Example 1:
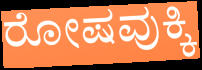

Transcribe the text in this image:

ರೋಷವುಕ್ಕಿ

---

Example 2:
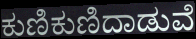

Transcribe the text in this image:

ಕುಣಿಕುಣಿದಾಡುವೆ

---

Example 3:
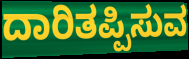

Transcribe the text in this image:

ದಾರಿತಪ್ಪಿಸುವ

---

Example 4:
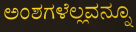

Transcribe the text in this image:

ಅಂಶಗಳೆಲ್ಲವನ್ನೂ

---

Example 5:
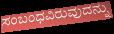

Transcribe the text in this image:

ಸಂಬಂಧವಿರುವುದನ್ನು